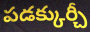
పడక్కుర్చీ